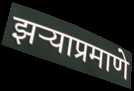
झऱ्याप्रमाणे